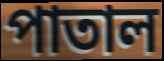
পাতাল